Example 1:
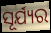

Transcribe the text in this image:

ସୂର୍ଯ୍ୟର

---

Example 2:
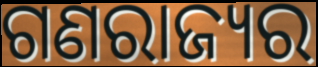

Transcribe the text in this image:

ଗଣରାଜ୍ୟର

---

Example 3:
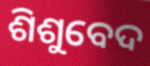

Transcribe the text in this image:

ଶିଶୁବେଦ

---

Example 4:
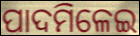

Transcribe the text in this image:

ପାଦମିଳେଇ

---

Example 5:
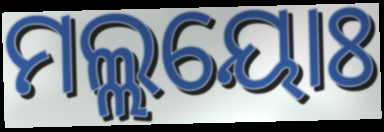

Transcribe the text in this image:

ମଲ୍ଲୟୋଃ